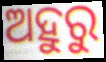
ଅହୁରୁ